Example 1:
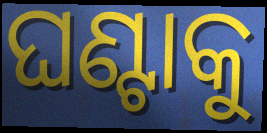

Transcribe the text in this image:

ଘଣ୍ଟାକୁ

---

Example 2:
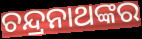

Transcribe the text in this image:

ଚନ୍ଦ୍ରନାଥଙ୍କର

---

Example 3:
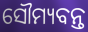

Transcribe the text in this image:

ସୌମ୍ୟବନ୍ତ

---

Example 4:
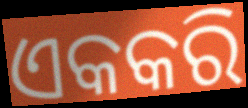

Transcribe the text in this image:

ଏକକରି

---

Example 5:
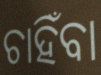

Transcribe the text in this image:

ଚାହିଁବା